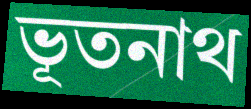
ভূতনাথ